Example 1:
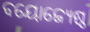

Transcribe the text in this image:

ବୟୋଜ୍ୟେଷ୍ଠ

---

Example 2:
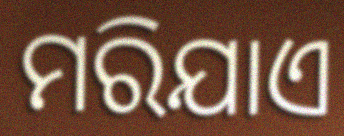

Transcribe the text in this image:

ମରିଯାଏ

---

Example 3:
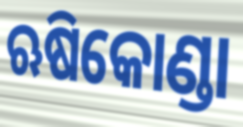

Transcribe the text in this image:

ଋଷିକୋଣ୍ଡା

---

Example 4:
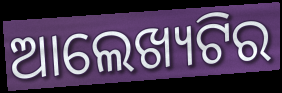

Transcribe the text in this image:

ଆଲେଖ୍ୟଟିର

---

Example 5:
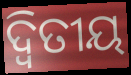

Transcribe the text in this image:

ଦ୍ୱିତୀୟ